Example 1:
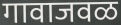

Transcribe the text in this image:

गावाजवळ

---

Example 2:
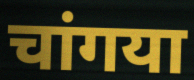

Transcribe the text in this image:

चांगया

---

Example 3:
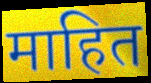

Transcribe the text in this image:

माहित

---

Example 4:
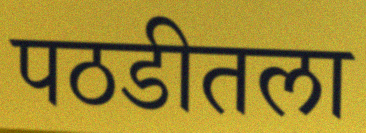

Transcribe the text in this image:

पठडीतला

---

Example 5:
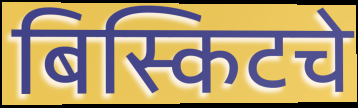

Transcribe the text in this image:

बिस्किटचे